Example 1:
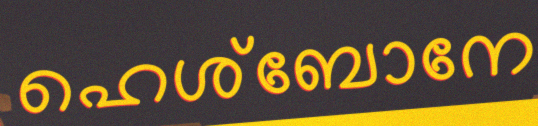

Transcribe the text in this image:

ഹെശ്ബോനേ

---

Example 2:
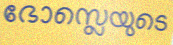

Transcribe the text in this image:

ഭോസ്ലെയുടെ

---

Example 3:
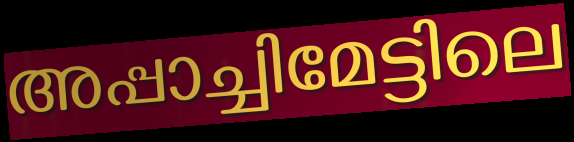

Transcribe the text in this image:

അപ്പാച്ചിമേട്ടിലെ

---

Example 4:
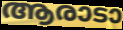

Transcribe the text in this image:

ആരാടാ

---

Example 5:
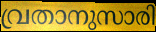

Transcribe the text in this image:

വ്രതാനുസാരി